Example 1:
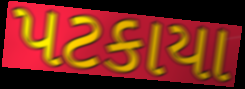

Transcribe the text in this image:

પટકાયા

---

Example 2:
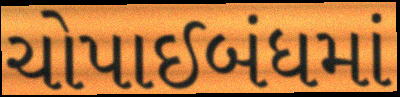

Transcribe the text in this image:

ચોપાઈબંધમાં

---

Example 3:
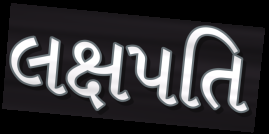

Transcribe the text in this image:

લક્ષપતિ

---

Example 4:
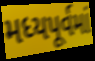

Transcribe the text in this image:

મધ્યપૂર્વમાં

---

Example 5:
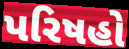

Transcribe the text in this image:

પરિષહો